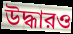
উদ্ধারও